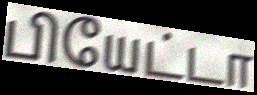
பியேட்டா